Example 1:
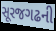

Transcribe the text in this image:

સૂરજગઢની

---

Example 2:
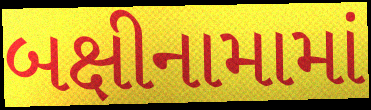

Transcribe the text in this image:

બક્ષીનામામાં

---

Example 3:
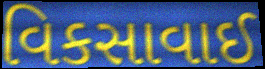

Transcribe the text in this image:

વિકસાવાઈ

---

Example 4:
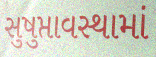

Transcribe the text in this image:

સુષુપ્તાવસ્થામાં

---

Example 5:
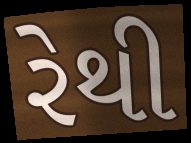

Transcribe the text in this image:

રેથી